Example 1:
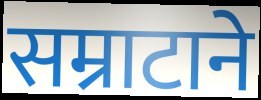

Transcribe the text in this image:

सम्राटाने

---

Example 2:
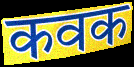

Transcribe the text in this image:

कवक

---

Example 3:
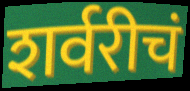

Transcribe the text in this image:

शर्वरीचं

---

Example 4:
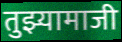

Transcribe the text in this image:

तुझ्यामाजी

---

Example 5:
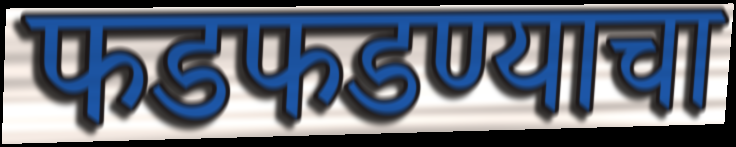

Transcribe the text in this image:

फडफडण्याचा